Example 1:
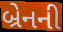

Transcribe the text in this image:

બ્રેનની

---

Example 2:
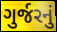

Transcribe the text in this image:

ગુર્જરનું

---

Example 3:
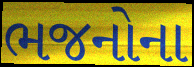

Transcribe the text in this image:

ભજનોના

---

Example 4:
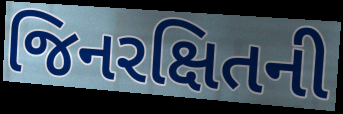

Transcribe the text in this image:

જિનરક્ષિતની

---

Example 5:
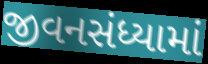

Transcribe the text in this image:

જીવનસંધ્યામાં